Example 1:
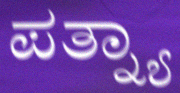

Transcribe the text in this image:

ಪತ್ನ್ಯಾ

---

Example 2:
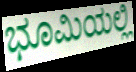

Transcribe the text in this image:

ಭೂಮಿಯಲ್ಲಿ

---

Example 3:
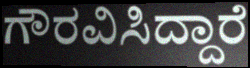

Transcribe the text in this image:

ಗೌರವಿಸಿದ್ದಾರೆ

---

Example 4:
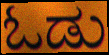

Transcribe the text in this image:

ಓಡು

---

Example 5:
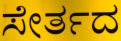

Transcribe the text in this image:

ಸೇರ್ತದ